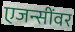
एजन्सींवर